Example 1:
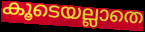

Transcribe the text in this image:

കൂടെയല്ലാതെ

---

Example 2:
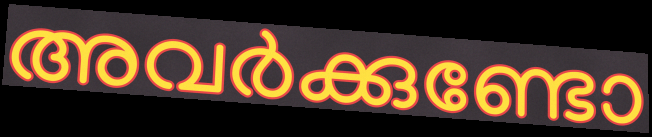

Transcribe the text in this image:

അവർക്കുണ്ടോ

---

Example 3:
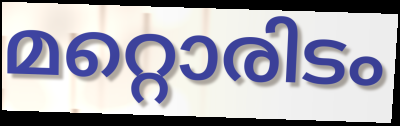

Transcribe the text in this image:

മറ്റൊരിടം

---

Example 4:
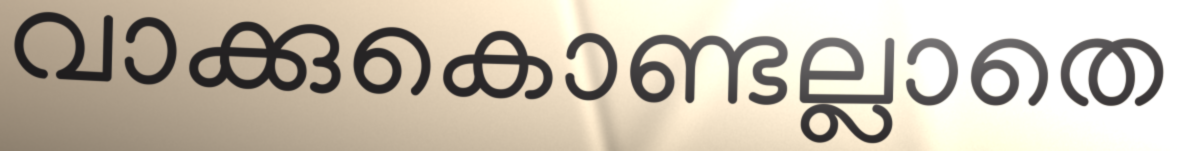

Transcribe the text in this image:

വാക്കുകൊണ്ടല്ലാതെ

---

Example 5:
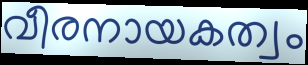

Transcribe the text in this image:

വീരനായകത്വം